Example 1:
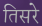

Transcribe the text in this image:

तिसरे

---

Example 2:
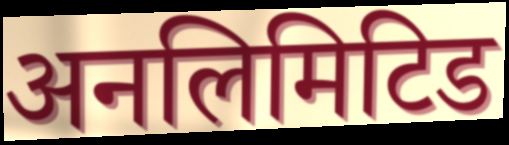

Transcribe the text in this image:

अनलिमिटिड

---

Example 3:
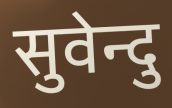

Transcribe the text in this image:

सुवेन्दु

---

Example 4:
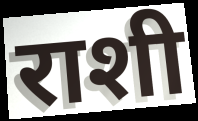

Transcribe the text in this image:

राशी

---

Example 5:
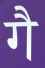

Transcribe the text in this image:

गै